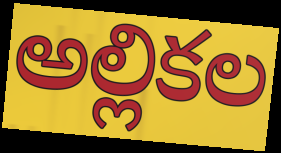
అల్లికల